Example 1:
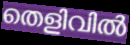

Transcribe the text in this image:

തെളിവിൽ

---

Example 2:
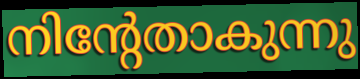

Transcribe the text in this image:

നിന്റേതാകുന്നു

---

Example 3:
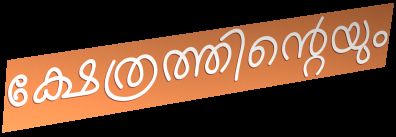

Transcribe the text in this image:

ക്ഷേത്രത്തിന്റെയും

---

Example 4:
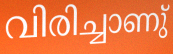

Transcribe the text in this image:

വിരിച്ചാണു്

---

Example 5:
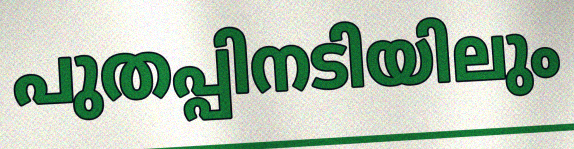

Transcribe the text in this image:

പുതപ്പിനടിയിലും